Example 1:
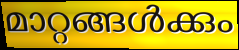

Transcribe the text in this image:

മാറ്റങ്ങൾക്കും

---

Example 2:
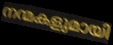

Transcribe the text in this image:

നന്മകളുമായി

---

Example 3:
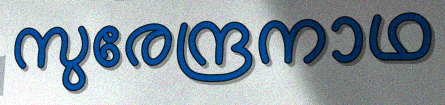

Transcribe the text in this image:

സുരേന്ദ്രനാഥ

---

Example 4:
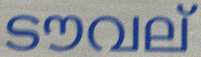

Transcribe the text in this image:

ടൗവല്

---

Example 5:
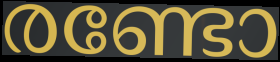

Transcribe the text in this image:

രണ്ടോ